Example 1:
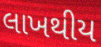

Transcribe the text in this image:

લાખથીય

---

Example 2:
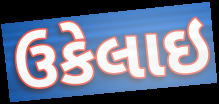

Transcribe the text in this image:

ઉકેલાઇ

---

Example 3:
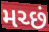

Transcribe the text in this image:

મચ્છં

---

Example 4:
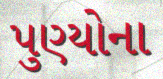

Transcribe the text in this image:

પુણ્યોના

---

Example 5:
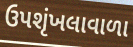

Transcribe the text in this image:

ઉપશૃંખલાવાળા